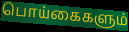
பொய்கைகளும்